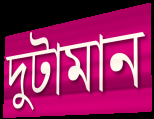
দুটামান